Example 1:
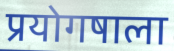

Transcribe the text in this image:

प्रयोगषाला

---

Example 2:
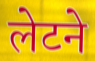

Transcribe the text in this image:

लेटने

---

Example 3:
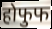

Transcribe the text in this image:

होफुफ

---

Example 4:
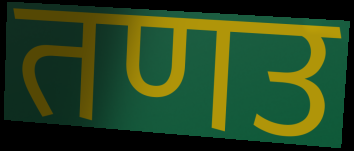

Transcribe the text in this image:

तणउ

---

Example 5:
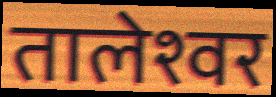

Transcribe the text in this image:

तालेश्वर